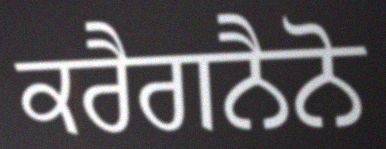
ਕਰੈਗਨੈਨੋ